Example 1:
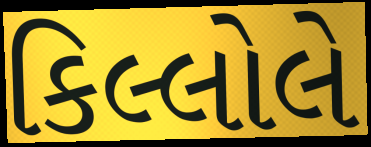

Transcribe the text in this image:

કિલ્લોલે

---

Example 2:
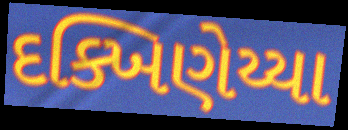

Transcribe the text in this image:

દક્ખિણેય્યા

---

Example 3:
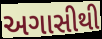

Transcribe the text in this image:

અગાસીથી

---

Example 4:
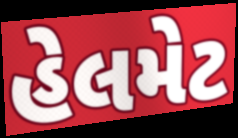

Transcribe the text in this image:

હેલમેટ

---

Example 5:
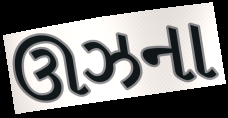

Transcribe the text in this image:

ઊઝના